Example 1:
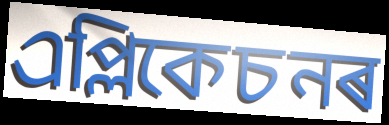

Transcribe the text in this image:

এপ্লিকেচনৰ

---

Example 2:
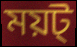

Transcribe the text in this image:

ময়ট্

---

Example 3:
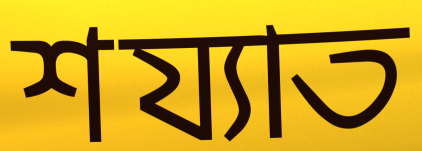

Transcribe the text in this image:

শয্যাত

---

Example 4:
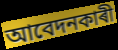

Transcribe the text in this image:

আবেদনকাৰী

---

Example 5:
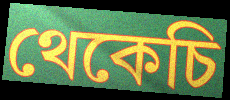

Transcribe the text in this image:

থেকেচি